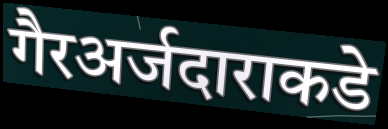
गैरअर्जदाराकडे